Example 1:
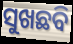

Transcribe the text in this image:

ସୁଖଛବି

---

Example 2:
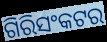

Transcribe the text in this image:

ଗିରିସଂକଟର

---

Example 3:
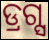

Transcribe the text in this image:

ଡ୍ରଗ୍ସ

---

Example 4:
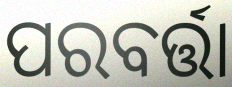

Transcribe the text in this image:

ପରବର୍ତ୍ତା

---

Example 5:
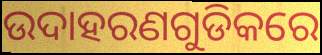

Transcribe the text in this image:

ଉଦାହରଣଗୁଡିକରେ